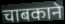
चाबकाने